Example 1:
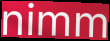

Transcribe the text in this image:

nimm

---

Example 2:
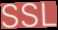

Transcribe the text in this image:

SSL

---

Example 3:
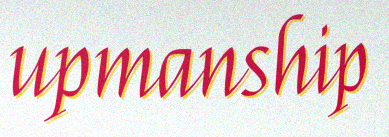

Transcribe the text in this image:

upmanship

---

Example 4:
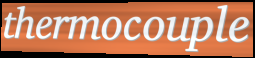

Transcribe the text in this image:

thermocouple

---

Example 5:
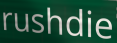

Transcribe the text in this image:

rushdie